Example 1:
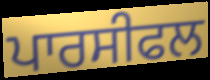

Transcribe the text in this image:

ਪਾਰਸੀਫਲ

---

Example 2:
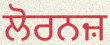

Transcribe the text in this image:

ਲੋਰਨਜ਼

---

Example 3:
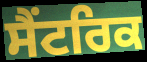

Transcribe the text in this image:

ਸੈਂਟਰਿਕ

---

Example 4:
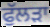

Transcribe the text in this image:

ਫੁੱਲੜਾ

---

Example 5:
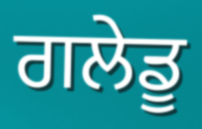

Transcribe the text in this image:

ਗਲੇਡੂ